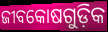
ଜୀବକୋଷଗୁଡ଼ିକ